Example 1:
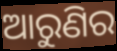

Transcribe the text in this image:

ଆରୁଣିର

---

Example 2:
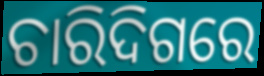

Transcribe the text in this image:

ଚାରିଦିଗରେ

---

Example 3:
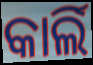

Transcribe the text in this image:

କାର୍ଲି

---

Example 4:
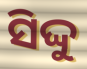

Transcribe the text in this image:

ସିଦ୍ଦୁ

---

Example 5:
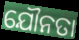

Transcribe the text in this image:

ଯୌନତା